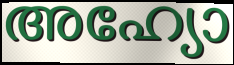
അഹ്യോ